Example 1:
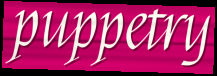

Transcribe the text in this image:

puppetry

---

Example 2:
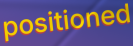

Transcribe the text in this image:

positioned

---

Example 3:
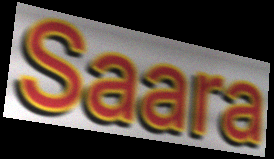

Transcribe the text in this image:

Saara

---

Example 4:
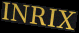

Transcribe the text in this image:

INRIX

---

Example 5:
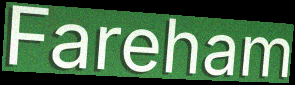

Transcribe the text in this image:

Fareham